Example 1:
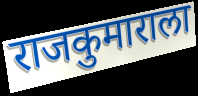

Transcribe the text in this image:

राजकुमाराला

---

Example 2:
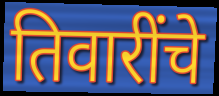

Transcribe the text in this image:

तिवारींचे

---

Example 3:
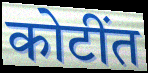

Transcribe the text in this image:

कोटींत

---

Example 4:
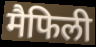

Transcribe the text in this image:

मैफिली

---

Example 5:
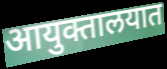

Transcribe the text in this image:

आयुक्तालयात